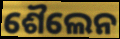
ଶୈଲେନ